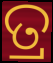
ତ୍ର